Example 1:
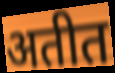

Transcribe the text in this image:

अतीत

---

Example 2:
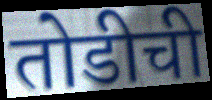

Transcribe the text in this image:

तोडीची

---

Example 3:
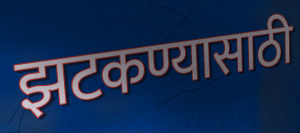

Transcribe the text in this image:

झटकण्यासाठी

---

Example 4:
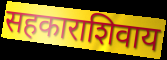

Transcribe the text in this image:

सहकाराशिवाय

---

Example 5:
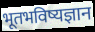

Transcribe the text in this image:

भूतभविष्यज्ञान